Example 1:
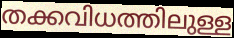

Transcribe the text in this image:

തക്കവിധത്തിലുള്ള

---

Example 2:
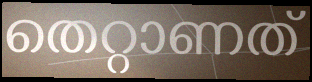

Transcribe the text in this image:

തെറ്റാണത്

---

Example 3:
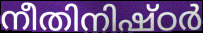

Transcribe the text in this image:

നീതിനിഷ്ഠർ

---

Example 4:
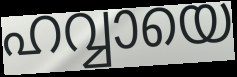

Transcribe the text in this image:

ഹവ്വായെ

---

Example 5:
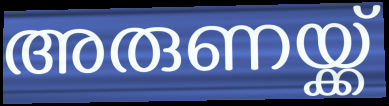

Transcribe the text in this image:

അരുണയ്ക്ക്